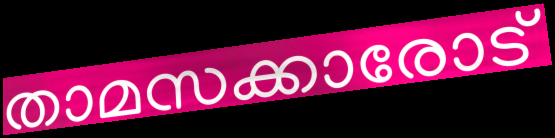
താമസക്കാരോട്